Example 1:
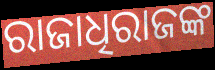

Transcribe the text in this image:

ରାଜାଧିରାଜଙ୍କ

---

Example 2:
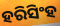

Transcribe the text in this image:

ହରିସିଂହ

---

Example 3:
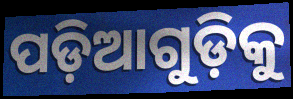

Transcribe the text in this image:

ପଡ଼ିଆଗୁଡ଼ିକୁ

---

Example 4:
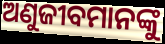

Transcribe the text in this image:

ଅଣୁଜୀବମାନଙ୍କୁ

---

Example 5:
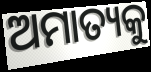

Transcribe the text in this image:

ଅମାତ୍ୟକୁ